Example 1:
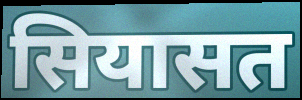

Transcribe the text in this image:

सियासत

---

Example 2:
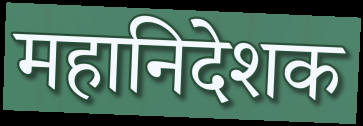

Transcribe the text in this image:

महानिदेशक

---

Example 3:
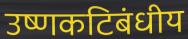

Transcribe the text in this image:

उष्णकटिबंधीय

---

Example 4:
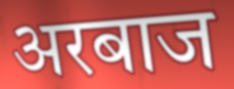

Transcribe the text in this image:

अरबाज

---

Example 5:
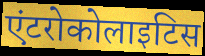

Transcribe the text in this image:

एंटरोकोलाइटिस